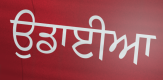
ਉਡਾਈਆ